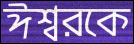
ঈশ্বরকে